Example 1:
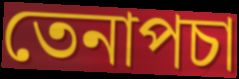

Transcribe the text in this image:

তেনাপচা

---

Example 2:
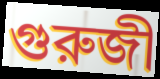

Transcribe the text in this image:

গুরুজী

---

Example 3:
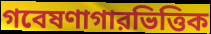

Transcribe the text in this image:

গবেষণাগারভিত্তিক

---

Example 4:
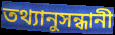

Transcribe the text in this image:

তথ্যানুসন্ধানী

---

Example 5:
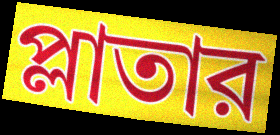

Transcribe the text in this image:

প্লাতার